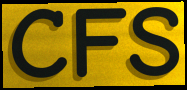
CFS